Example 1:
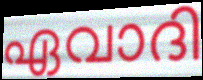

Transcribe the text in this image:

ഏവാദി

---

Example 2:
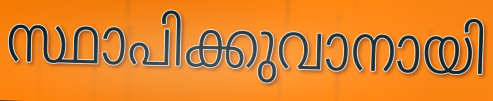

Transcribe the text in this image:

സ്ഥാപിക്കുവാനായി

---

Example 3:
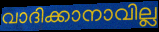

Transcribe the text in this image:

വാദിക്കാനാവില്ല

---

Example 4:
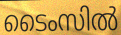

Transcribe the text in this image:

ടൈംസിൽ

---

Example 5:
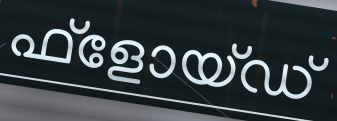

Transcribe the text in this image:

ഫ്ളോയ്ഡ്